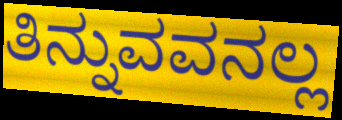
ತಿನ್ನುವವನಲ್ಲ